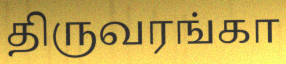
திருவரங்கா